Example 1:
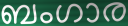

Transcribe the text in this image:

ബംഗാര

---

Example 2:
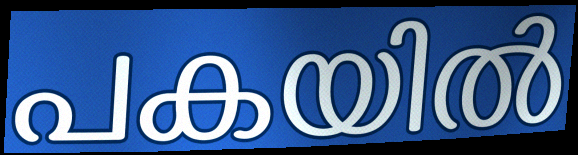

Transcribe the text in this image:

പകയിൽ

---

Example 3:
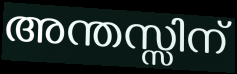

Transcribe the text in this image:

അന്തസ്സിന്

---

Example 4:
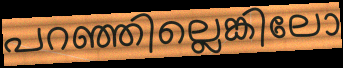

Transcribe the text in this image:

പറഞ്ഞില്ലെങ്കിലോ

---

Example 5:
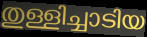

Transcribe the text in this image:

തുള്ളിച്ചാടിയ